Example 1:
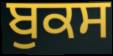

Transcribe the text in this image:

ਬੁਕਸ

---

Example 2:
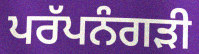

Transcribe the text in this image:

ਪਰੱਪਨੰਗੜੀ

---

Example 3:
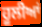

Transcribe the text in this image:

ਹੂਲੀਆਂ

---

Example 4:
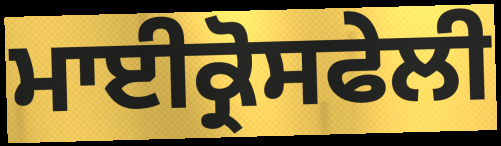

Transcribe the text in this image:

ਮਾਈਕ੍ਰੋਸਫੇਲੀ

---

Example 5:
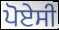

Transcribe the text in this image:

ਪੋਏਸੀ